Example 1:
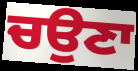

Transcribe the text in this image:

ਚਉਣਾ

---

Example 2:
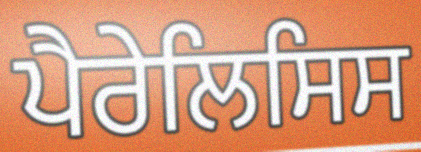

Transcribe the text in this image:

ਪੈਰੇਲਿਸਿਸ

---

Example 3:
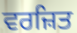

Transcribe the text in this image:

ਵਰਜ਼ਿਤ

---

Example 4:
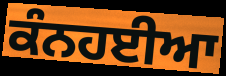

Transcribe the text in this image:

ਕੰਨਹਈਆ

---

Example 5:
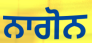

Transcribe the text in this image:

ਨਾਗੋਨ